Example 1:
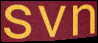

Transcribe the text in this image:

svn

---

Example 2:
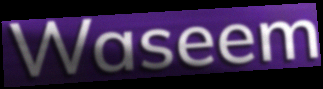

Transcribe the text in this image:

Waseem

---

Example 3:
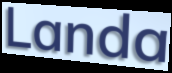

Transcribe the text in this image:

Landa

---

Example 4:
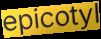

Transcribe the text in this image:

epicotyl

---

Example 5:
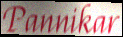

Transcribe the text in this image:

Pannikar